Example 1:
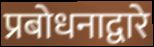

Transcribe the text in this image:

प्रबोधनाद्वारे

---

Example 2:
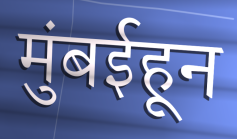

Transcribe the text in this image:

मुंबईहून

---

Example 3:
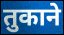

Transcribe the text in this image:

तुकाने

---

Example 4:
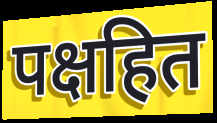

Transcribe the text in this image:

पक्षहित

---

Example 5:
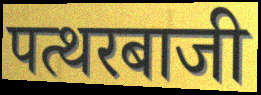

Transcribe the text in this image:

पत्थरबाजी